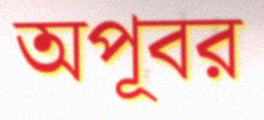
অপূবর